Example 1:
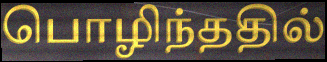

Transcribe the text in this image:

பொழிந்ததில்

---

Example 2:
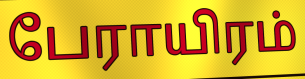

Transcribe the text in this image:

பேராயிரம்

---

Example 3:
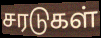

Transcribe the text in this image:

சரடுகள்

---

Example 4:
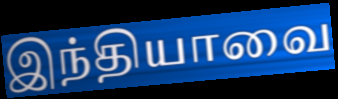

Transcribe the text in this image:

இந்தியாவை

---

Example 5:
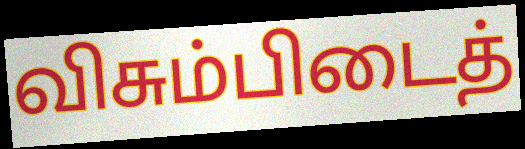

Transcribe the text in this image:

விசும்பிடைத்